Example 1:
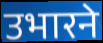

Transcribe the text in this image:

उभारने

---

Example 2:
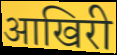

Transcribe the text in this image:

आखिरी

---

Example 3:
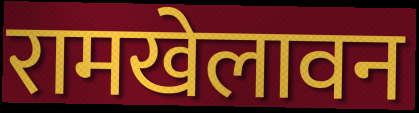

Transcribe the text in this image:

रामखेलावन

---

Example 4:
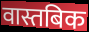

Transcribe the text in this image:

वास्तबिक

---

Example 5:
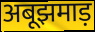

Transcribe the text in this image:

अबूझमाड़